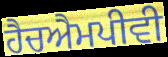
ਹੈਚਐਮਪੀਵੀ